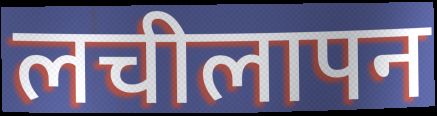
लचीलापन